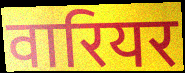
वारियर